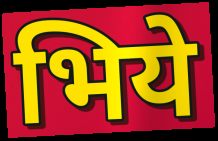
भिये